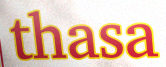
thasa